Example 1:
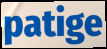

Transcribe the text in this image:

patige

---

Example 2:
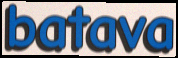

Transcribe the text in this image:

batava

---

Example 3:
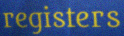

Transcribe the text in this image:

registers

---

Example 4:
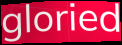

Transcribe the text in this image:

gloried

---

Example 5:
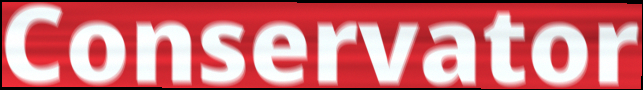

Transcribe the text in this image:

Conservator